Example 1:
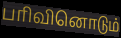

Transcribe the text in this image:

பரிவினொடும்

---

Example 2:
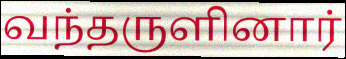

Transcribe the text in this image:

வந்தருளினார்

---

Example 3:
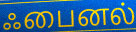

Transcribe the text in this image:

ஃபைனல்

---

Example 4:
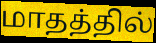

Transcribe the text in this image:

மாதத்தில்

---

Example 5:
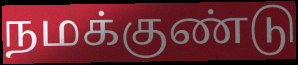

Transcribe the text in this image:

நமக்குண்டு